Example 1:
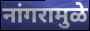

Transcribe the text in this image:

नांगरामुळे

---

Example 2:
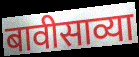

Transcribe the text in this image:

बावीसाव्या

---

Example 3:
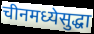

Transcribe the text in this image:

चीनमध्येसुद्धा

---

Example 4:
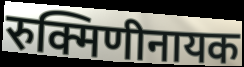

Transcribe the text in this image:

रुक्मिणीनायक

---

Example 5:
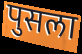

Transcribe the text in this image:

पुसला